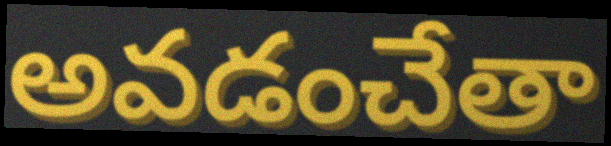
అవడంచేతా